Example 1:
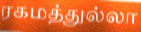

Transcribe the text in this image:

ரகமத்துல்லா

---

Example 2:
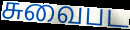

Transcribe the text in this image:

சுவைபட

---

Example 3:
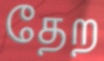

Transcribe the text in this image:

தேற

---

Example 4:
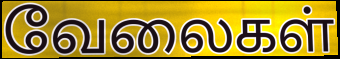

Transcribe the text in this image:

வேலைகள்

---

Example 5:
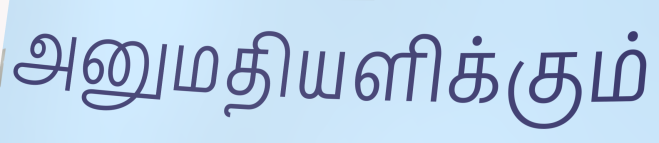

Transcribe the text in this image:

அனுமதியளிக்கும்